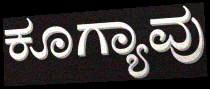
ಕೂಗ್ಯಾವು